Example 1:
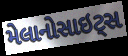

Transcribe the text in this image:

મેલાનોસાઇટ્સ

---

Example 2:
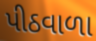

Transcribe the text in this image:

પીઠવાળા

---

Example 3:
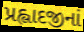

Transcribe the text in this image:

પ્રહ્લાદજીનાં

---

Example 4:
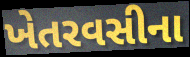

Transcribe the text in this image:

ખેતરવસીના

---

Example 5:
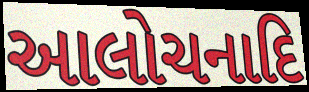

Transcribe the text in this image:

આલોચનાદિ